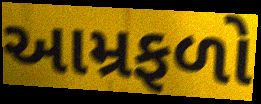
આમ્રફળો